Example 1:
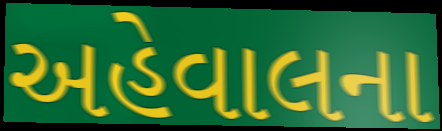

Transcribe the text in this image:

અહેવાલના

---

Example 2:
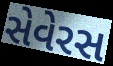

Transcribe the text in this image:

સેવેરસ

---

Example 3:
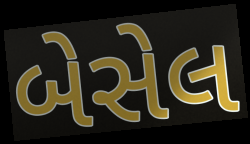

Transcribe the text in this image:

બેસેલ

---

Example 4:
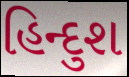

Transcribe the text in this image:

હિન્દુશ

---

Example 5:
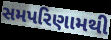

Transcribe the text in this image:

સમપરિણામથી